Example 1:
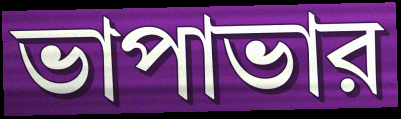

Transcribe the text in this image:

ভাপাভার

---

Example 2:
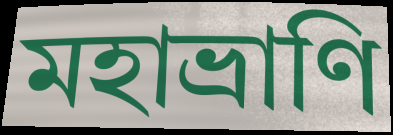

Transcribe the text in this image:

মহাভ্রাণি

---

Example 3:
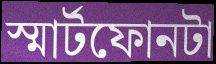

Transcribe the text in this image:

স্মার্টফোনটা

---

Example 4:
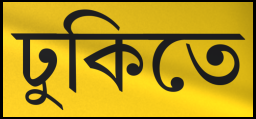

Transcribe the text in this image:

ঢুকিতে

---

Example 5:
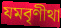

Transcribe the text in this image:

যমবৃণীথা